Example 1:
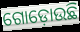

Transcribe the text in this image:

ଗୋଡ଼ୋଉଛି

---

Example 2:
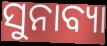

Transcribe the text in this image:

ସୁନାବ୍ୟା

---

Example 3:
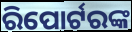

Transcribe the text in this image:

ରିପୋର୍ଟରଙ୍କ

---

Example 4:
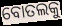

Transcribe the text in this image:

ବୋତଲକୁ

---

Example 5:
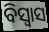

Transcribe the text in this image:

ବିସ୍ବାସ